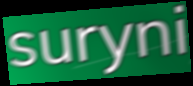
suryni